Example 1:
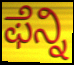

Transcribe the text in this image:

ಫೆನ್ನಿ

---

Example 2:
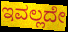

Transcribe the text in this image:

ಇವಲ್ಲದೇ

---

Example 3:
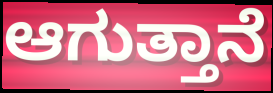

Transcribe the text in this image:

ಆಗುತ್ತಾನೆ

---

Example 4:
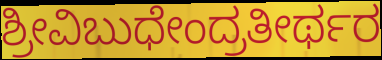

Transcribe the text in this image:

ಶ್ರೀವಿಬುಧೇಂದ್ರತೀರ್ಥರ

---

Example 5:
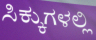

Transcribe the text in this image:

ಸಿಕ್ಕುಗಳಲ್ಲಿ